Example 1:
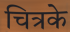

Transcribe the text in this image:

चित्रके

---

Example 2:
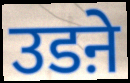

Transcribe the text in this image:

उडऩे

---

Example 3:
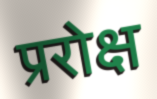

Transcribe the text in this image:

प्ररोक्ष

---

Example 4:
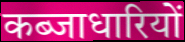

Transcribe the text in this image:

कब्जाधारियों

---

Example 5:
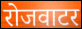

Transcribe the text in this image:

रोजवाटर